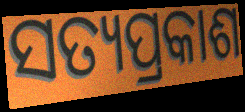
ସତ୍ୟପ୍ରକାଶ